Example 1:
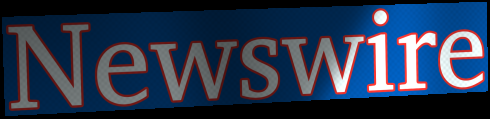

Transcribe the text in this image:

Newswire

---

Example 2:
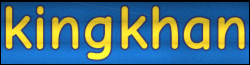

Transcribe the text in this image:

kingkhan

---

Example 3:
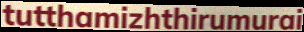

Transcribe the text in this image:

tutthamizhthirumurai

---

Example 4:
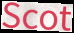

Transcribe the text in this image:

Scot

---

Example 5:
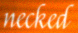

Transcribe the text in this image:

necked